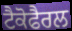
ਟੈਕੋਫੈਰਲ